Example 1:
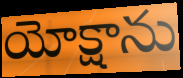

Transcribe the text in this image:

యోక్షాను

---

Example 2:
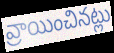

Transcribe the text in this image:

వ్రాయించినట్లు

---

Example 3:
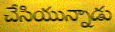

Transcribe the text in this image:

చేసియున్నాడు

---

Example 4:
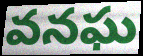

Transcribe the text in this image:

వనఘ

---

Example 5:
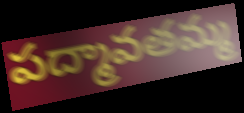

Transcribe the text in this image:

పద్మావతమ్మ